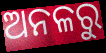
ଅନଳରୁ